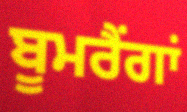
ਬੂਮਰੈਂਗਾਂ